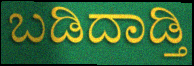
ಬಡಿದಾಡ್ತಿ